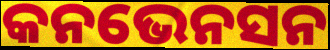
କନଭେନସନ